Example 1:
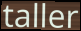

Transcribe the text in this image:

taller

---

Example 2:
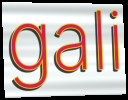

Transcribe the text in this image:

gali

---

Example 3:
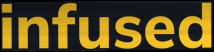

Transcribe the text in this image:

infused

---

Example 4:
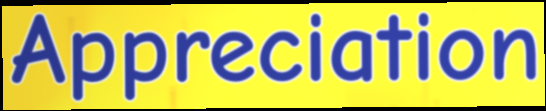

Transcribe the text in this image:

Appreciation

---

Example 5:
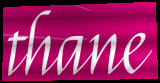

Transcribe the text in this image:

thane